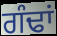
ਗੰਢਾਂ